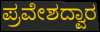
ಪ್ರವೇಶದ್ವಾರ